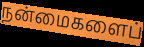
நன்மைகளைப்